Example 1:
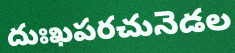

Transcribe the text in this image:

దుఃఖపరచునెడల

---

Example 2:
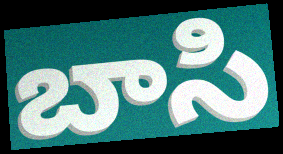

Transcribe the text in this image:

బాసి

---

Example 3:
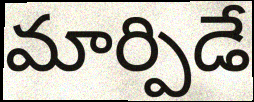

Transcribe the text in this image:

మార్పిడే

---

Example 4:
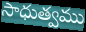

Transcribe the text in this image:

సాధుత్వము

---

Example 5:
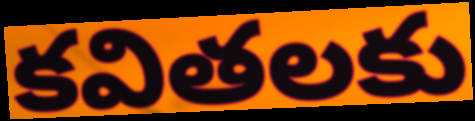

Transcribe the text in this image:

కవితలకు